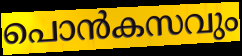
പൊൻകസവും